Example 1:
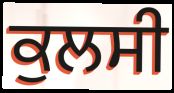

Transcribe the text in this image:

ਕੁਲਸੀ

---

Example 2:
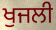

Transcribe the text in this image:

ਖੁਜਲੀ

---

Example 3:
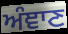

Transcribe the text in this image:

ਅੰਞਾਣ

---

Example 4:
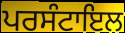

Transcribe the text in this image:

ਪਰਸੰਟਾਇਲ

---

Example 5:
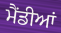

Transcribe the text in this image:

ਮੈਂਡੀਆਂ